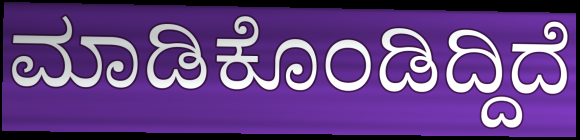
ಮಾಡಿಕೊಂಡಿದ್ದಿದೆ